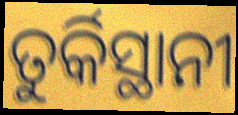
ତୁର୍କିସ୍ଥାନୀ